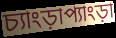
চ্যাংড়াপ্যাংড়া